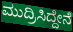
ಮುದ್ರಿಸಿದ್ದೇನೆ